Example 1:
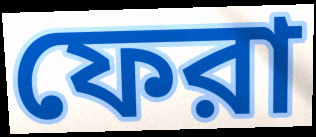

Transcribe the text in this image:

ফেরা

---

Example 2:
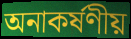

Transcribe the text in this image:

অনাকর্ষণীয়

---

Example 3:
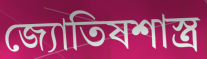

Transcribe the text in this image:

জ্যোতিষশাস্ত্র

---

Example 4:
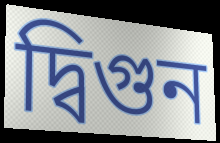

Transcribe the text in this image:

দ্বিগুন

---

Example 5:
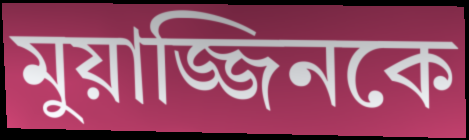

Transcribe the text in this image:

মুয়াজ্জিনকে